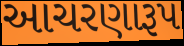
આચરણારૂપ